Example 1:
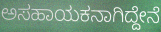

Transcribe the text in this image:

ಅಸಹಾಯಕನಾಗಿದ್ದೇನೆ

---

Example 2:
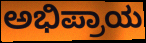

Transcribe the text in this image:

ಅಭಿಪ್ರಾಯ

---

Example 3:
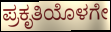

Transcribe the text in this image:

ಪ್ರಕೃತಿಯೊಳಗೇ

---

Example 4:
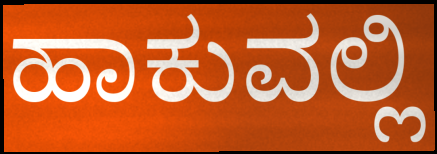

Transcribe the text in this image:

ಹಾಕುವಲ್ಲಿ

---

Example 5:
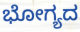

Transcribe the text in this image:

ಭೋಗ್ಯದ